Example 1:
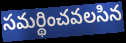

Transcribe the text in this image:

సమర్థించవలసిన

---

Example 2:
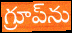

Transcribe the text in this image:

గ్రూప్‌ను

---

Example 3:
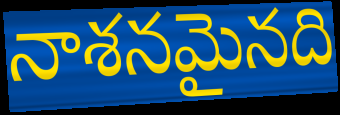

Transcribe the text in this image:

నాశనమైనది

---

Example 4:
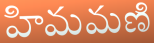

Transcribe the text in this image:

హిమమణి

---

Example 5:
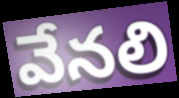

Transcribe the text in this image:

వేనలి